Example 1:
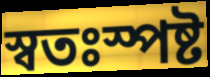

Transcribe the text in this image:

স্বতঃস্পষ্ট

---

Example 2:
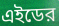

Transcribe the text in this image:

এইডের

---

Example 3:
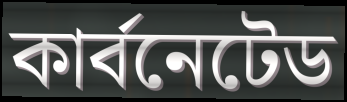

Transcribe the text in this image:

কার্বনেটেড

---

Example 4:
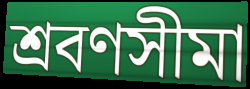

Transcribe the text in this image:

শ্রবণসীমা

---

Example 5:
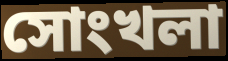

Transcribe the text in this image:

সোংখলা